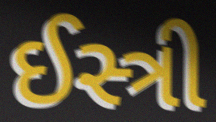
ઈસ્ત્રી